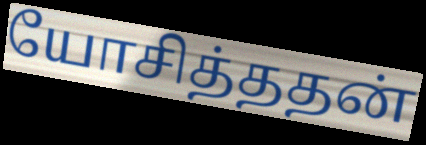
யோசித்ததன்